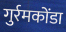
गुर्रमकोंडा